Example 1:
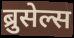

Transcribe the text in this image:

ब्रुसेल्स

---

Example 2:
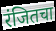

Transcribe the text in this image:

रंजितचा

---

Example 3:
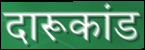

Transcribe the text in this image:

दारूकांड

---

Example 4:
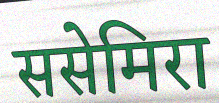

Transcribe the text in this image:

ससेमिरा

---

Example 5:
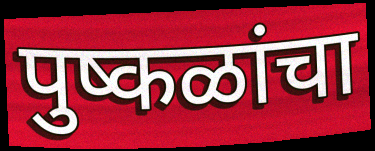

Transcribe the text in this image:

पुष्कळांचा